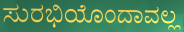
ಸುರಭಿಯೊಂದಾವಲ್ಲ